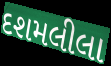
દશમલીલા